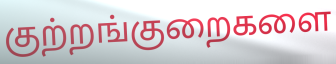
குற்றங்குறைகளை